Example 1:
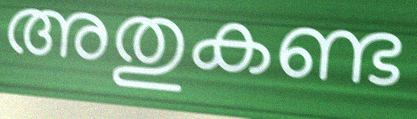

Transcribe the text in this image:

അതുകണ്ട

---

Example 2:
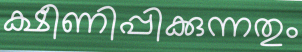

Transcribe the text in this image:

ക്ഷീണിപ്പിക്കുന്നതും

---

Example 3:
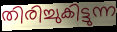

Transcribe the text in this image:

തിരിച്ചുകിട്ടുന്ന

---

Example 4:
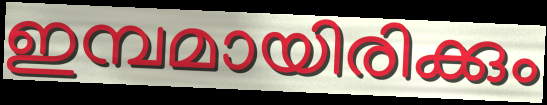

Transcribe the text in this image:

ഇമ്പമായിരിക്കും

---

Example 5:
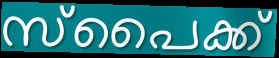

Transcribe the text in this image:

സ്പൈക്ക്